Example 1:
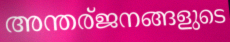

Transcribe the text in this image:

അന്തര്ജനങ്ങളുടെ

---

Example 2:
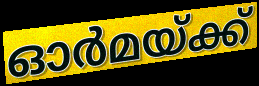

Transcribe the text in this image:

ഓർമയ്ക്ക്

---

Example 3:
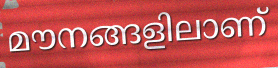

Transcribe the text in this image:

മൗനങ്ങളിലാണ്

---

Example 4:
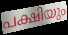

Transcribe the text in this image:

പക്ഷിയും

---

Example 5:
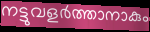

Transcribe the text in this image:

നട്ടുവളർത്താനാകും